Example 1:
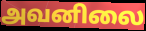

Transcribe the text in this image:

அவனிலை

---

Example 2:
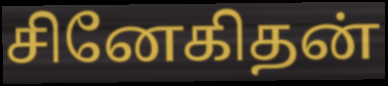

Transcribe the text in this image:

சினேகிதன்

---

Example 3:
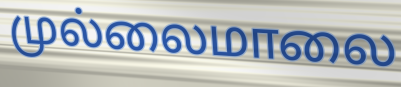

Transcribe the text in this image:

முல்லைமாலை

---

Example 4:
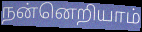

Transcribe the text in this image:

நன்னெறியாம்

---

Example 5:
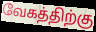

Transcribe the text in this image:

வேகத்திற்கு